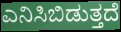
ಎನಿಸಿಬಿಡುತ್ತದೆ